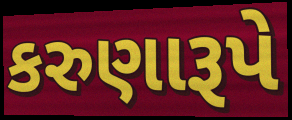
કરુણારૂપે